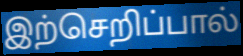
இற்செறிப்பால்